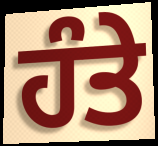
ਹੰਤੇ